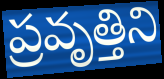
ప్రవృత్తిని